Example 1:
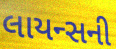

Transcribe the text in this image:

લાયન્સની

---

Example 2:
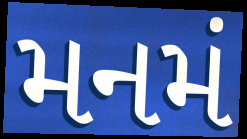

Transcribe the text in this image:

મનમં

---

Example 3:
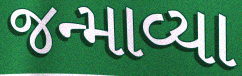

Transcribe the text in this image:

જન્માવ્યા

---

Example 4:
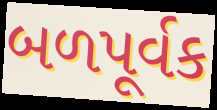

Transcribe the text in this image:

બળપૂર્વક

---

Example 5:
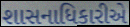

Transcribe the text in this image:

શાસનાધિકારીએ